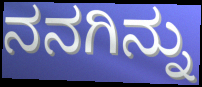
ನನಗಿನ್ನು